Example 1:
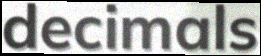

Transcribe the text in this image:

decimals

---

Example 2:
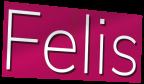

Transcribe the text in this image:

Felis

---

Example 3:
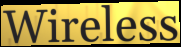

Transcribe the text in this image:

Wireless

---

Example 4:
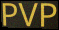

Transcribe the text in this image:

PVP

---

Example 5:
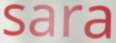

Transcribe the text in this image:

sara